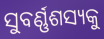
ସୁବର୍ଣ୍ଣଶସ୍ୟକୁ